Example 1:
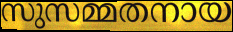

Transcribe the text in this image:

സുസമ്മതനായ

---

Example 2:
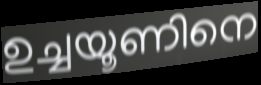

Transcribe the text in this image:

ഉച്ചയൂണിനെ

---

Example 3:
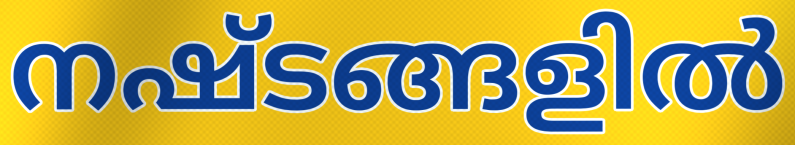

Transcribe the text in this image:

നഷ്ടങ്ങളിൽ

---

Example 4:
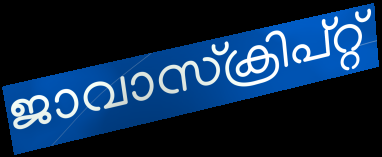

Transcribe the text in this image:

ജാവാസ്ക്രിപ്റ്റ്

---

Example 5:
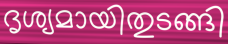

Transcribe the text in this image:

ദൃശ്യമായിതുടങ്ങി